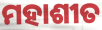
ମହାଶୀତ